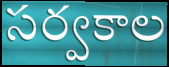
సర్వకాల